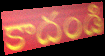
కాదండి